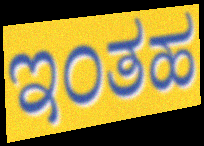
ಇಂತಹ